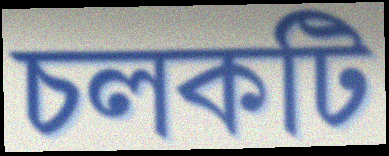
চলকটি